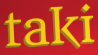
taki